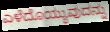
ಎಳೆದೊಯ್ಯುವುದನ್ನು